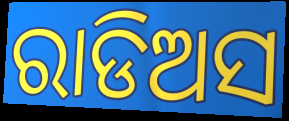
ରାଡିଅସ